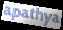
apathya